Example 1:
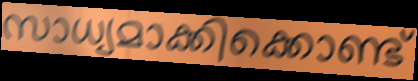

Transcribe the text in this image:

സാധ്യമാക്കിക്കൊണ്ട്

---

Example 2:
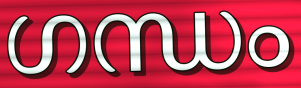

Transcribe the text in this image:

ഗന്ധം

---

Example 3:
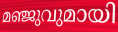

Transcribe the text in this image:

മഞ്ജുവുമായി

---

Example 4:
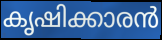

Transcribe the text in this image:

കൃഷിക്കാരൻ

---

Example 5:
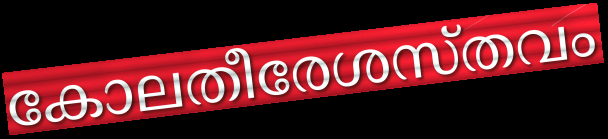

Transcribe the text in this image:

കോലതീരേശസ്തവം